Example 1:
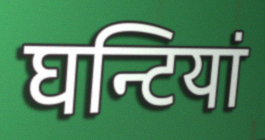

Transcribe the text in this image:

घन्टियां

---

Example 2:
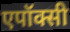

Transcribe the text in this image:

एपॉक्सी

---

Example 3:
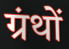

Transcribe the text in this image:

ग्रंथों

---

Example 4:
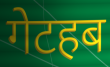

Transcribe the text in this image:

गेटहब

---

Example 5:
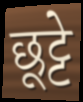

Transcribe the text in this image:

छूट्टे